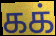
கக்